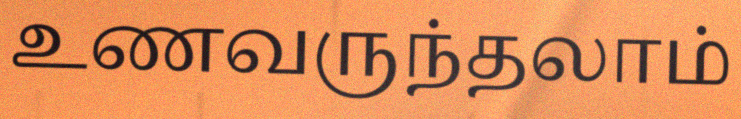
உணவருந்தலாம்